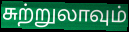
சுற்றுலாவும்